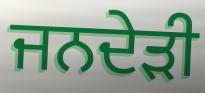
ਜਨਦੇੜੀ